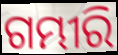
ଗମ୍ଭୀରି